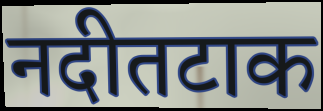
नदीतटाक